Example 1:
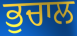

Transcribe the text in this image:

ਭੁਚਾਲ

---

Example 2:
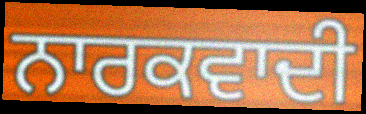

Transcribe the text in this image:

ਨਾਰਕਵਾਦੀ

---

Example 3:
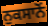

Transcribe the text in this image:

ਨੁਕਸਾਨੋਂ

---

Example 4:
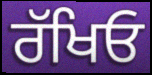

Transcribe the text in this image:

ਰੱਖਿਓ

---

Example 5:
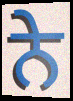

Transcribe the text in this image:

ਨੇ